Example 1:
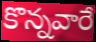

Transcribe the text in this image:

కొన్నవారే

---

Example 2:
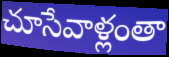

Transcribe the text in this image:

చూసేవాళ్లంతా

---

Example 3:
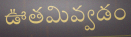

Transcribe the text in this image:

ఊతమివ్వడం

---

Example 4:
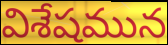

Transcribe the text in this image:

విశేషమున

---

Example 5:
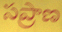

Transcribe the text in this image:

సప్రాణ